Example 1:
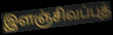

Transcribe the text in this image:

இளஞ்சிவப்புத்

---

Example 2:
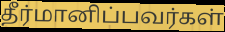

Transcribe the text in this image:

தீர்மானிப்பவர்கள்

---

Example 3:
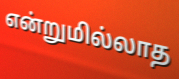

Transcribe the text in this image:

என்றுமில்லாத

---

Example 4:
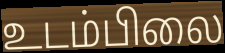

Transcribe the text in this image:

உடம்பிலை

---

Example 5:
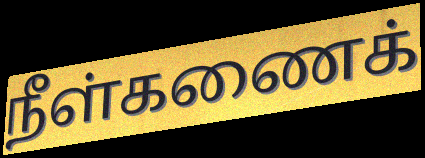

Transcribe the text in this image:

நீள்கணைக்